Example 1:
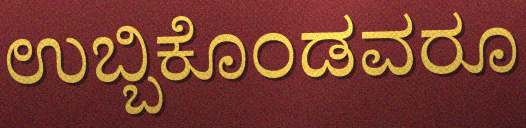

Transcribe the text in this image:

ಉಬ್ಬಿಕೊಂಡವರೂ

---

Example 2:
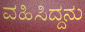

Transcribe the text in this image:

ವಹಿಸಿದ್ದನು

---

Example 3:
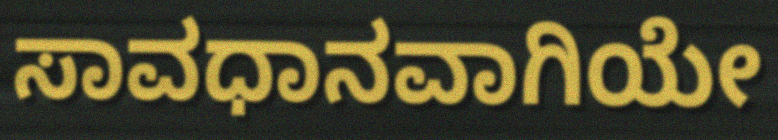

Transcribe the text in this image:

ಸಾವಧಾನವಾಗಿಯೇ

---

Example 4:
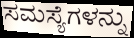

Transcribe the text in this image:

ಸಮಸ್ಯೆಗಳನ್ನು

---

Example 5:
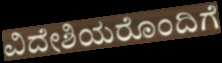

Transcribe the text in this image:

ವಿದೇಶಿಯರೊಂದಿಗೆ